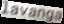
lavanga